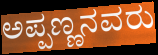
ಅಪ್ಪಣ್ಣನವರು